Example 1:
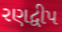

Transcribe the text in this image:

રણદ્વીપ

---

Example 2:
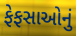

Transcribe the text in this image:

ફેફસાઓનું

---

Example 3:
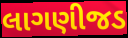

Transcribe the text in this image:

લાગણીજડ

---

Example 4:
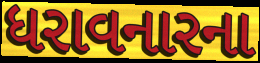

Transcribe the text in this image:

ધરાવનારના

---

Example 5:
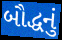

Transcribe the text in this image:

બૌદ્ધનું